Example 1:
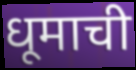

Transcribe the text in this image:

धूमाची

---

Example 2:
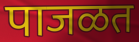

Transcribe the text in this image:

पाजळत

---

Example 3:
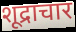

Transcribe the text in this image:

शूद्राचार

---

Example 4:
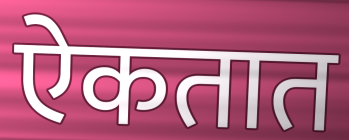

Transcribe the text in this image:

ऐकतात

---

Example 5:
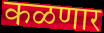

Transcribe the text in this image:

कळणार